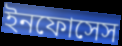
ইনফোসেস